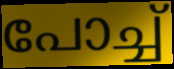
പോച്ച്